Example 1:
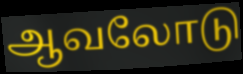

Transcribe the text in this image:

ஆவலோடு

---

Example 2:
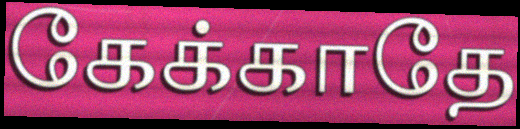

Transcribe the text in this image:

கேக்காதே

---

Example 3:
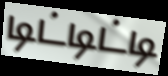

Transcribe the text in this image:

டிட்டிட்டி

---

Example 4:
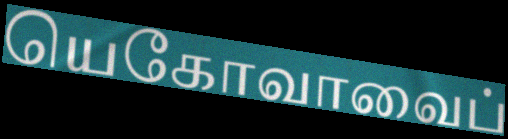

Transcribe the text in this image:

யெகோவாவைப்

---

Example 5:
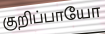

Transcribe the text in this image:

குறிப்பாயோ